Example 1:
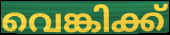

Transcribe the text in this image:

വെങ്കിക്ക്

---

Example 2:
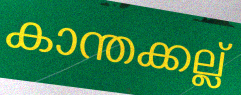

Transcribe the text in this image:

കാന്തക്കല്ല്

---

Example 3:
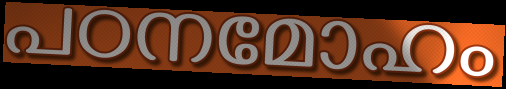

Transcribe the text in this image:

പഠനമോഹം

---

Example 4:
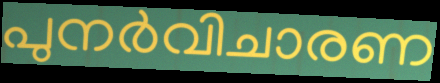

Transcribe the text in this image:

പുനർവിചാരണ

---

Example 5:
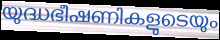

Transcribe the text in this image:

യുദ്ധഭീഷണികളുടെയും